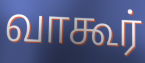
வாகூர்